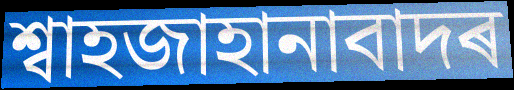
শ্বাহজাহানাবাদৰ